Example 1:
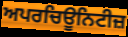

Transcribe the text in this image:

ਅਪਰਚਿਊਨਿਟੀਜ਼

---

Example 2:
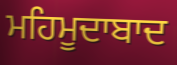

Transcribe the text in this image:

ਮਹਿਮੂਦਾਬਾਦ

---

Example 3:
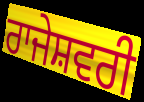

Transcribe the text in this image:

ਰਾਜੇਸ਼ਵਰੀ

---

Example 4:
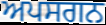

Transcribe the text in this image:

ਅਪਸਗਨ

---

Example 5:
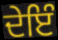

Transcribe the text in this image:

ਦੇਇੰ